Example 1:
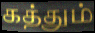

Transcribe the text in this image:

கத்தும்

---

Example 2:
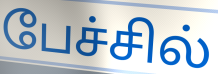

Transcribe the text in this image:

பேச்சில்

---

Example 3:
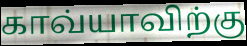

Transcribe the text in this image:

காவ்யாவிற்கு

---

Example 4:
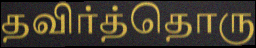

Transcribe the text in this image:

தவிர்த்தொரு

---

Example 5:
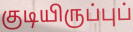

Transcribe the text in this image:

குடியிருப்புப்